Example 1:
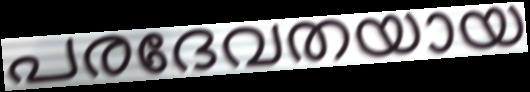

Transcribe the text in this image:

പരദേവതയായ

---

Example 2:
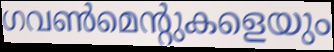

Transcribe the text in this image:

ഗവൺമെന്റുകളെയും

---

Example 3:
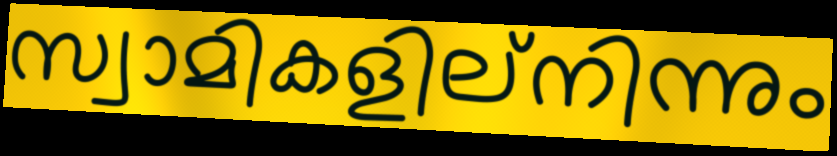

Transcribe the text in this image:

സ്വാമികളില്നിന്നും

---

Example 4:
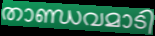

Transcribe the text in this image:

താണ്ഡവമാടി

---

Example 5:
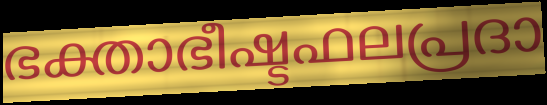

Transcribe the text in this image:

ഭക്താഭീഷ്ടഫലപ്രദാ